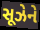
સૂઝેને